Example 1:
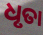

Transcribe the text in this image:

ଧୃତା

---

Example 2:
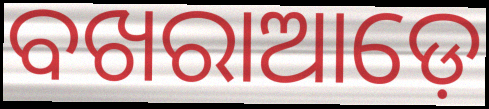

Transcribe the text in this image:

ବଖରାଆଡ଼େ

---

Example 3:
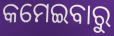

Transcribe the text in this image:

କମେଇବାରୁ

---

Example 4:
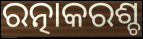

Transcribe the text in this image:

ରତ୍ନାକରଶ୍ଚ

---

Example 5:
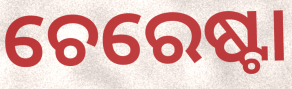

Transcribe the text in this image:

ଚେରେଷ୍ଟା